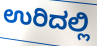
ಉರಿದಲ್ಲಿ